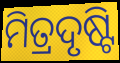
ମିତ୍ରଦୃଷ୍ଟି